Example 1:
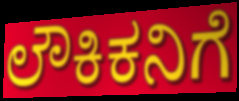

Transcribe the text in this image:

ಲೌಕಿಕನಿಗೆ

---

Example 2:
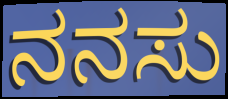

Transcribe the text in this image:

ನನಸು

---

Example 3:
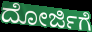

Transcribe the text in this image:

ದೋರ್ಜಿಗೆ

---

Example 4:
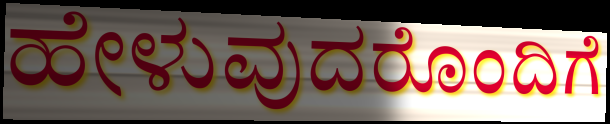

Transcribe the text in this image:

ಹೇಳುವುದರೊಂದಿಗೆ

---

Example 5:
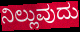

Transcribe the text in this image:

ನಿಲ್ಲುವುದು